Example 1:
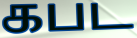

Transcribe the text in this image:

கபட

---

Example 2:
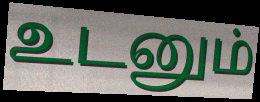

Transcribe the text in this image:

உடனும்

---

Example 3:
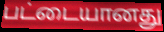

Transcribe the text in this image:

பட்டையானது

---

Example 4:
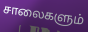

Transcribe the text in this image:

சாலைகளும்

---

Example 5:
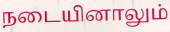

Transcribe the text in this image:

நடையினாலும்